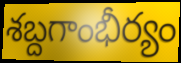
శబ్దగాంభీర్యం